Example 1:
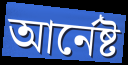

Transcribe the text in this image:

আৰ্নেষ্ট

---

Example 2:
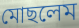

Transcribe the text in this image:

মোছলেম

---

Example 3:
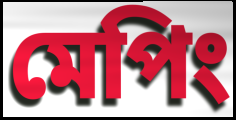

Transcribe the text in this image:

মেপিং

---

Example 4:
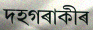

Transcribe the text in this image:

দহগৰাকীৰ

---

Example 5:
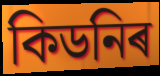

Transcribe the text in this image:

কিডনিৰ